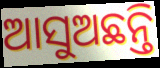
ଆସୁଅଛନ୍ତି